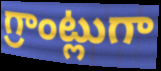
గ్రాంట్లుగా